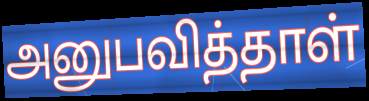
அனுபவித்தாள்